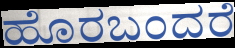
ಹೊರಬಂದರೆ